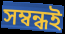
সম্বন্ধই